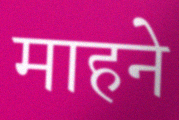
माहने